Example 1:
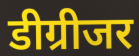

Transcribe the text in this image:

डीग्रीजर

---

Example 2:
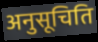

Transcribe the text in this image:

अनुसूचिति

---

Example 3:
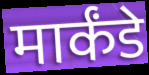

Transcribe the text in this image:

मार्कंडे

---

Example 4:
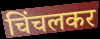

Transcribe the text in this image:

चिंचलकर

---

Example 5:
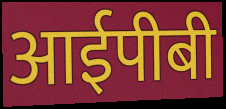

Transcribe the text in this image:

आईपीबी